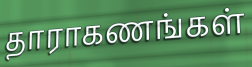
தாராகணங்கள்